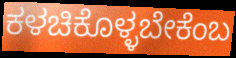
ಕಳಚಿಕೊಳ್ಳಬೇಕೆಂಬ